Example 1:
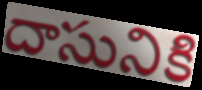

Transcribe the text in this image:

దాసునికి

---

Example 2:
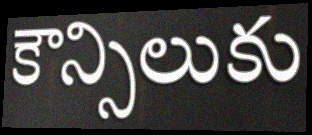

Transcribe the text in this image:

కౌన్సిలుకు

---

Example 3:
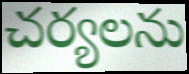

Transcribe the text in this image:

చర్యలను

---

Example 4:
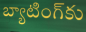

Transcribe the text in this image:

బ్యాటింగ్‌కు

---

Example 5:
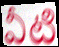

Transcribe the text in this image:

వీటి